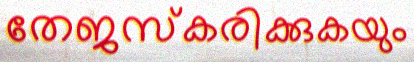
തേജസ്കരിക്കുകയും